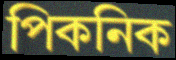
পিকনিক